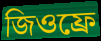
জিওফ্ৰে